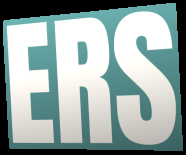
ERS